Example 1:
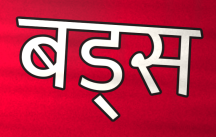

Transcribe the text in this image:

बड्स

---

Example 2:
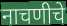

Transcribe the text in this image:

नाचणीचे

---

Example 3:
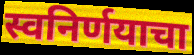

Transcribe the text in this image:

स्वनिर्णयाचा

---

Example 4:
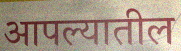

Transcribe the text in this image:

आपल्यातील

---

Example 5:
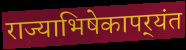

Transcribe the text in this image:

राज्याभिषेकापर्यंत